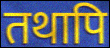
तथापि